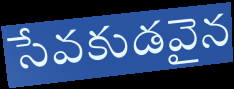
సేవకుడవైన